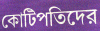
কোটিপতিদের